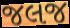
જલજ